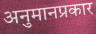
अनुमानप्रकार